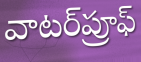
వాటర్‌ప్రూఫ్